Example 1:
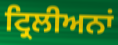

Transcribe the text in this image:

ਟ੍ਰਿਲੀਅਨਾਂ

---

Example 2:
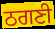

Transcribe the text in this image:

ਠਗਣੀ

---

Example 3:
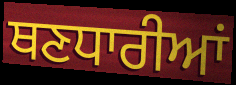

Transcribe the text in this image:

ਥਣਧਾਰੀਆਂ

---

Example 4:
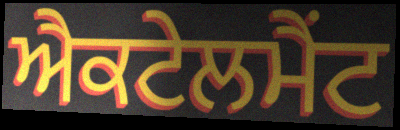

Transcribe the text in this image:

ਐਕਟੇਲਮੈਂਟ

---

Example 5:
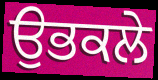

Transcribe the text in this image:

ਉਭਕਲੇ